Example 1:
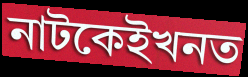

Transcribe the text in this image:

নাটকেইখনত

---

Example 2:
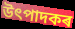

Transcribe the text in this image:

উৎপাদকৰ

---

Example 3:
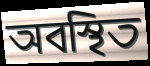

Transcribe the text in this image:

অবস্থিত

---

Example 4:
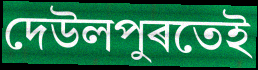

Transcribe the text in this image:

দেউলপুৰতেই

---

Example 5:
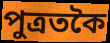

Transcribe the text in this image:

পুত্ৰতকৈ